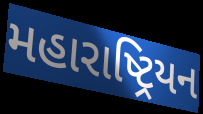
મહારાષ્ટ્રિયન